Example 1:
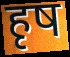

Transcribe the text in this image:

हृष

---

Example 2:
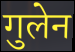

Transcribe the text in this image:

गुलेन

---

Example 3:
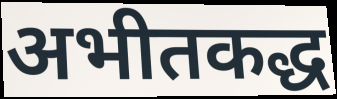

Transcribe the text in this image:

अभीतकद्ध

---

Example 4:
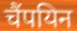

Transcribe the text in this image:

चैंपयिन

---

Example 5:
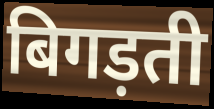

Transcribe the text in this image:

बिगड़ती